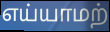
எய்யாமற்